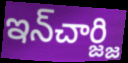
ఇన్‌చార్జ్జి